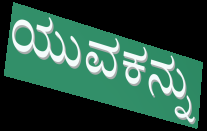
ಯುವಕನ್ನು